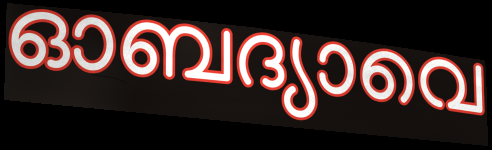
ഓബദ്യാവെ